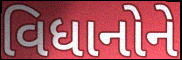
વિધાનોને